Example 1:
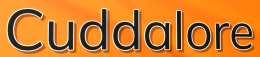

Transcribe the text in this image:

Cuddalore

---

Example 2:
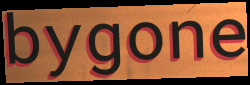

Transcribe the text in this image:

bygone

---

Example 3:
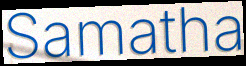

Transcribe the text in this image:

Samatha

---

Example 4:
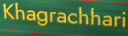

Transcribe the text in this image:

Khagrachhari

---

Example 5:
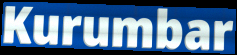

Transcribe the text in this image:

Kurumbar